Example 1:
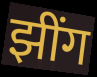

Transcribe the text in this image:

झींग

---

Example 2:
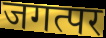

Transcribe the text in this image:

जगत्पर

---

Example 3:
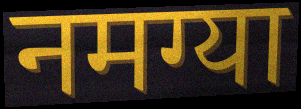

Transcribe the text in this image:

नमग्या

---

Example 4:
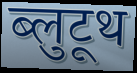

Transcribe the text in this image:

ब्लुटूथ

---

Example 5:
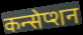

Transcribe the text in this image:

कन्सेप्शन